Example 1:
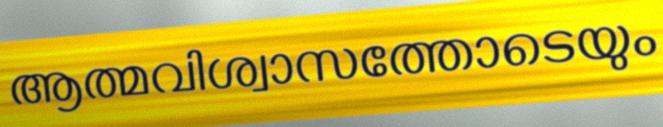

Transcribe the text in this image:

ആത്മവിശ്വാസത്തോടെയും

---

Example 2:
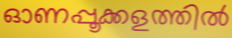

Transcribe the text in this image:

ഓണപ്പൂക്കളത്തിൽ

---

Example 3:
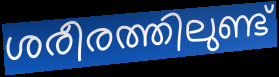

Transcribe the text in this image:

ശരീരത്തിലുണ്ട്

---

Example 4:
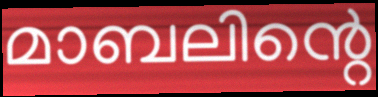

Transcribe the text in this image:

മാബലിന്റെ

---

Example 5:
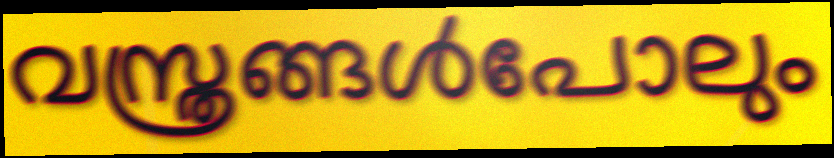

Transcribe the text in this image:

വസ്ത്രങ്ങൾപോലും